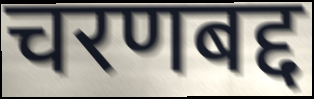
चरणबद्द